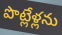
పొట్లేళ్లను